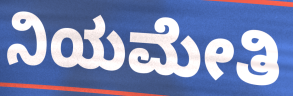
ನಿಯಮೇತಿ